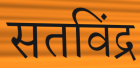
सतविंद्र